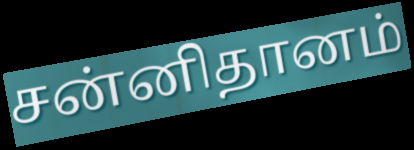
சன்னிதானம்